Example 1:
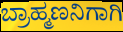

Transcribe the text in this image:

ಬ್ರಾಹ್ಮಣನಿಗಾಗಿ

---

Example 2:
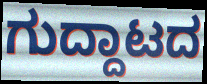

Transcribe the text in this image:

ಗುದ್ದಾಟದ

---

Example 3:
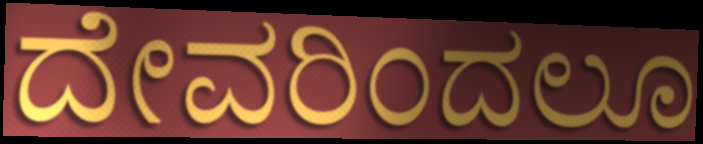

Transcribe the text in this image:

ದೇವರಿಂದಲೂ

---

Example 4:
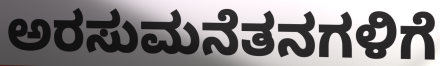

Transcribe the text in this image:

ಅರಸುಮನೆತನಗಳಿಗೆ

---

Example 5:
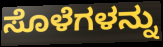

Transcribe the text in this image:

ಸೊಳೆಗಳನ್ನು